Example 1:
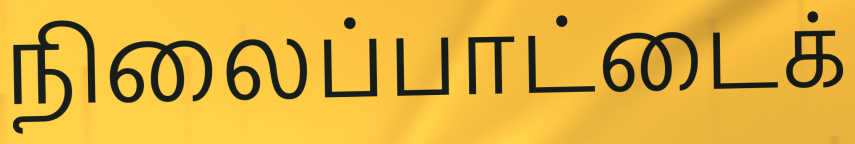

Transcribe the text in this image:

நிலைப்பாட்டைக்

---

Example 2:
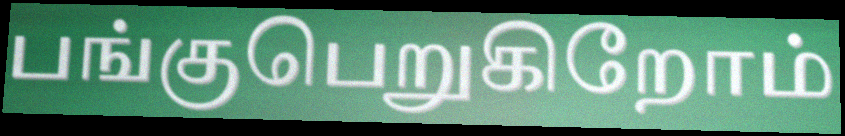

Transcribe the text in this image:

பங்குபெறுகிறோம்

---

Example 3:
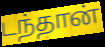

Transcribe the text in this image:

டந்தான்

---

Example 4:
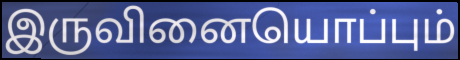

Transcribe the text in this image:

இருவினையொப்பும்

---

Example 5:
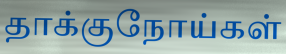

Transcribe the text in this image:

தாக்குநோய்கள்